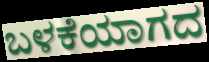
ಬಳಕೆಯಾಗದ